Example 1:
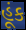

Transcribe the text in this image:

હૂંક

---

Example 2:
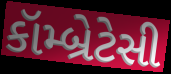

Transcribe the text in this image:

કૉમ્બ્રેટેસી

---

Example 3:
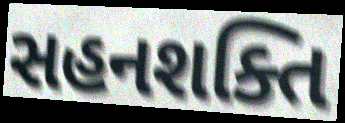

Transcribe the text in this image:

સહનશક્તિ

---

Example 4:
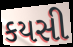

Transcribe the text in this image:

કયસી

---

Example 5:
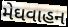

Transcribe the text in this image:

મેઘવાહન